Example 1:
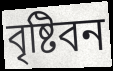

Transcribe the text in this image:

বৃষ্টিবন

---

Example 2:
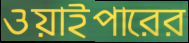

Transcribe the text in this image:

ওয়াইপারের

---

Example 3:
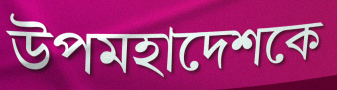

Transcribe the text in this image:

উপমহাদেশকে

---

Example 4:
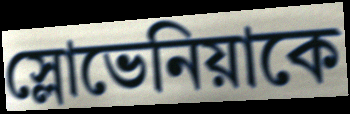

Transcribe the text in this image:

স্লোভেনিয়াকে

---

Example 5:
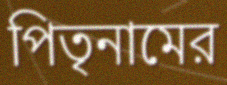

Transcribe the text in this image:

পিতৃনামের